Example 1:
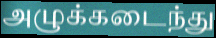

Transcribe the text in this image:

அழுக்கடைந்து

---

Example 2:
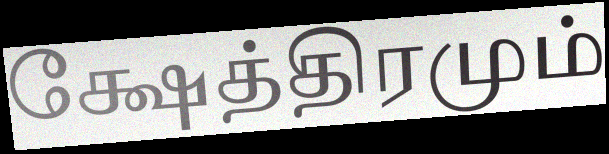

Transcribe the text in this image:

க்ஷேத்திரமும்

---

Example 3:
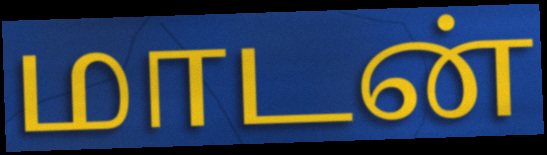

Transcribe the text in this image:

மாடன்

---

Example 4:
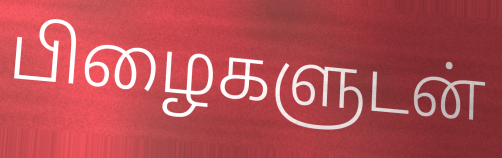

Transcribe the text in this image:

பிழைகளுடன்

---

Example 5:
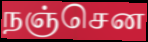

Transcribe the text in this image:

நஞ்சென